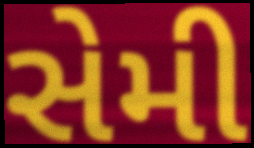
સેમી